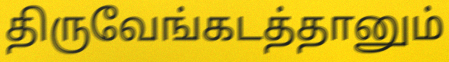
திருவேங்கடத்தானும்